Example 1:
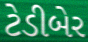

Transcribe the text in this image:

ટેડીબેર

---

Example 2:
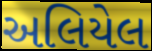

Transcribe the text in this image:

અલિયેલ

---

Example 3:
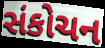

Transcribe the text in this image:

સંકોચન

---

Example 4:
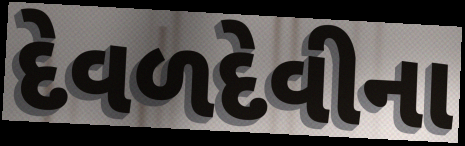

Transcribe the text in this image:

દેવળદેવીના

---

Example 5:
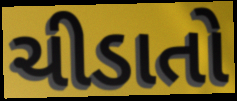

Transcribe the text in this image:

ચીડાતો